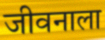
जीवनाला